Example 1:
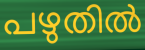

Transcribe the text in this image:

പഴുതിൽ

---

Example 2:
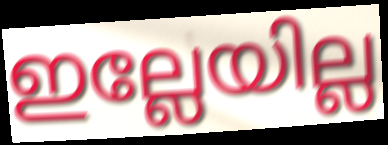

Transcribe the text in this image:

ഇല്ലേയില്ല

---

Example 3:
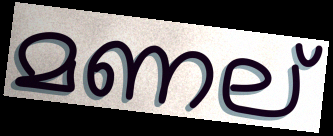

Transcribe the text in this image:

മണല്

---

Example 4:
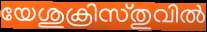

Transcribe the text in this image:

യേശുക്രിസ്തുവിൽ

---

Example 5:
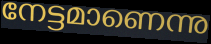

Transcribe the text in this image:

നേട്ടമാണെന്നു